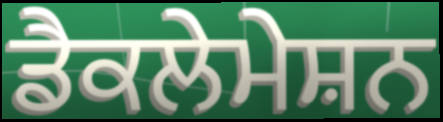
ਡੈਕਲੇਮੇਸ਼ਨ